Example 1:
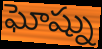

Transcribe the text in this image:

ఘోష్ను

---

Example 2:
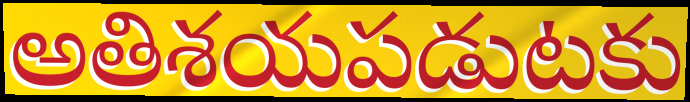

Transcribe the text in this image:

అతిశయపడుటకు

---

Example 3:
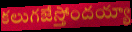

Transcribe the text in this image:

కలుగజేస్తోందయ్యా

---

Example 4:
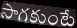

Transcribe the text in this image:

సాగకుంటే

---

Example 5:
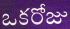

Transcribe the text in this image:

ఒకరోజు